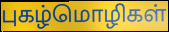
புகழ்மொழிகள்